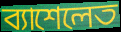
ব্যাশেলেত